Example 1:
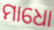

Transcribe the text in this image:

ମାଧୋ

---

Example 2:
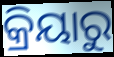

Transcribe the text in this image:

କ୍ରିୟାରୁ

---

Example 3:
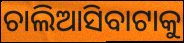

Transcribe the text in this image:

ଚାଲିଆସିବାଟାକୁ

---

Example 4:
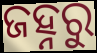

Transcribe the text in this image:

ଜହ୍ନରୁ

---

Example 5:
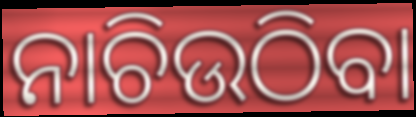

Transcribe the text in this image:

ନାଚିଉଠିବା